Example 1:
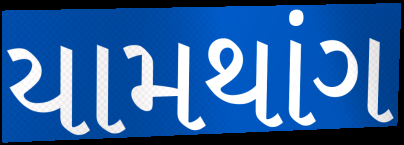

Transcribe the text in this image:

યામથાંગ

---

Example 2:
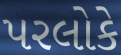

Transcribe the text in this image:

પરલોકે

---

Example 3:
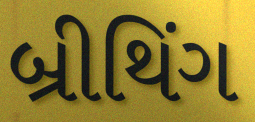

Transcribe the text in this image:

બ્રીથિંગ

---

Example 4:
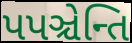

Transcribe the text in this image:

પપઞ્ચેન્તિ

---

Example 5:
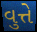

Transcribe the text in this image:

વુત્તે